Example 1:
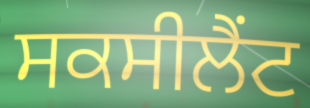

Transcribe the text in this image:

ਸਕਸੀਲੈਂਟ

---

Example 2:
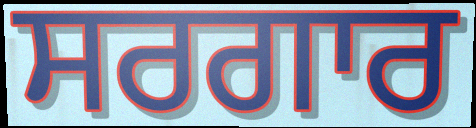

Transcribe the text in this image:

ਸਰਗਾਰ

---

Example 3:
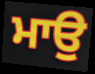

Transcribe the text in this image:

ਮਾਉ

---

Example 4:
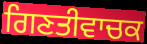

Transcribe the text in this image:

ਗਿਣਤੀਵਾਚਕ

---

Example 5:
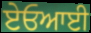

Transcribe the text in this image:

ਏਓਆਈ